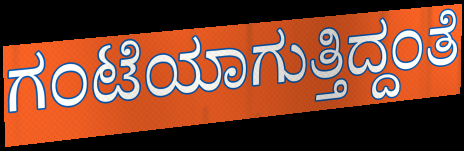
ಗಂಟೆಯಾಗುತ್ತಿದ್ದಂತೆ